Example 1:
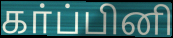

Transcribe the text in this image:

கர்ப்பினி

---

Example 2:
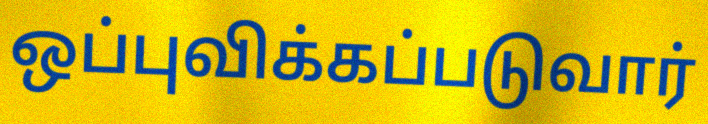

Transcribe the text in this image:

ஒப்புவிக்கப்படுவார்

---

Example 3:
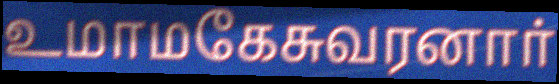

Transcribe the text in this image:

உமாமகேசுவரனார்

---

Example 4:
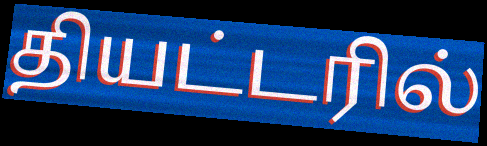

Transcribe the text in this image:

தியட்டரில்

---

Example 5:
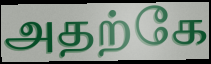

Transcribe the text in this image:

அதற்கே